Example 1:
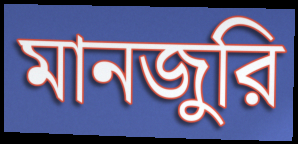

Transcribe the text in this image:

মানজুরি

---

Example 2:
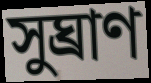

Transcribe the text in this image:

সুঘ্রাণ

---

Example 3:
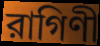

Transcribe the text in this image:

রাগিণী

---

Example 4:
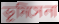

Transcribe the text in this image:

ভূমিসেনা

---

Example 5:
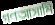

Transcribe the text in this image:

গণআসামি